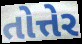
તોત્તેર